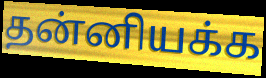
தன்னியக்க